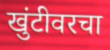
खुंटीवरचा